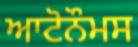
ਆਟੋਨੌਮਸ